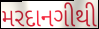
મરદાનગીથી